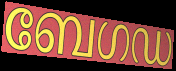
ബേഗഡ